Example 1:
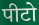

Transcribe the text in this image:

पीटो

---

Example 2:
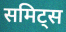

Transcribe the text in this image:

समिट्स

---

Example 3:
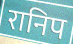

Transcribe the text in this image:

रानिप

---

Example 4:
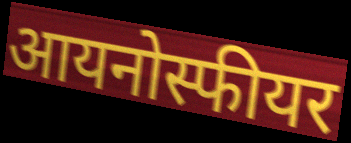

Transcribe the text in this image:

आयनोस्फीयर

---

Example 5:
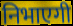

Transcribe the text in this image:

निभाएगी